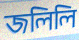
জলিলি